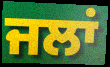
ਜਲਾਂ